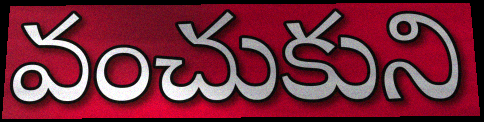
వంచుకుని